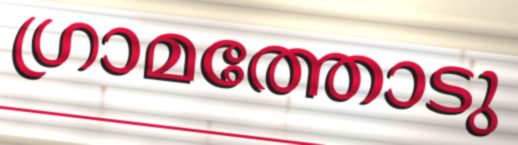
ഗ്രാമത്തോടു